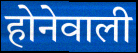
होनेवाली